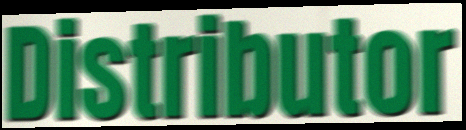
Distributor